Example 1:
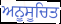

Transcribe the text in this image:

ਅਨੂਸੂਚਿਤ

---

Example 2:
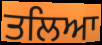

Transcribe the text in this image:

ਤਲਿਆ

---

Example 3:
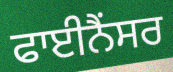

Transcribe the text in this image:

ਫਾਈਨੈਂਸਰ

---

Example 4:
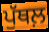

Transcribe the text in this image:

ਪੁੱਥਲ਼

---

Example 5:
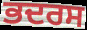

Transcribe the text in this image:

ਭਦਰਸ